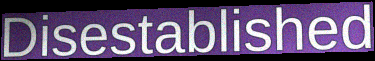
Disestablished